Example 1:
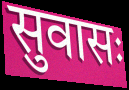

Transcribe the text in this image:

सुवासः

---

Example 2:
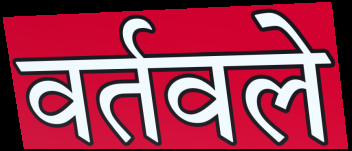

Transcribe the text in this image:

वर्तवले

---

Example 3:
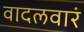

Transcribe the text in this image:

वादलवारं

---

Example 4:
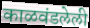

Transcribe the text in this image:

काळवंडलेली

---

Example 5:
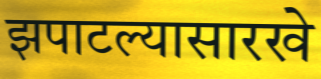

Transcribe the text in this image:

झपाटल्यासारखे